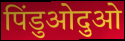
पिंडुओदुओ